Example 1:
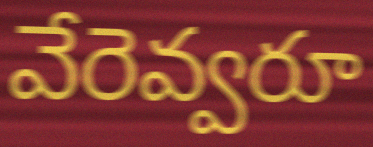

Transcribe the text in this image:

వేరెవ్వరూ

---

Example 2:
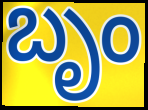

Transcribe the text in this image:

బృం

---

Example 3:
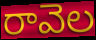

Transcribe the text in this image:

రావెల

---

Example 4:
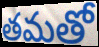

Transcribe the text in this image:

తమతో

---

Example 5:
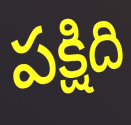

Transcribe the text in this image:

పక్షిది